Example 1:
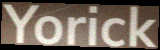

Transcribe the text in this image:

Yorick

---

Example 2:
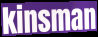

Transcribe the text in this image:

kinsman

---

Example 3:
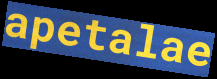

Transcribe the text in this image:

apetalae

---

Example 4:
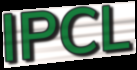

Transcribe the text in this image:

IPCL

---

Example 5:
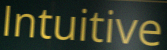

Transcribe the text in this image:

Intuitive